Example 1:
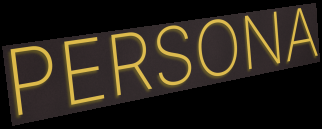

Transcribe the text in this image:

PERSONA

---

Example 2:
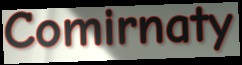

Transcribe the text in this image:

Comirnaty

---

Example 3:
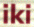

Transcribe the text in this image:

iki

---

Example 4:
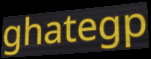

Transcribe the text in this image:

ghategp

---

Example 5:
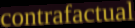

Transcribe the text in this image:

contrafactual